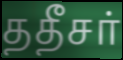
ததீசர்